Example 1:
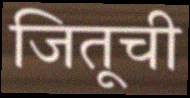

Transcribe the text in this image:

जितूची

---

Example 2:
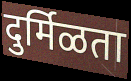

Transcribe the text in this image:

दुर्मिळता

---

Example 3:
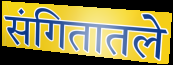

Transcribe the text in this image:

संगितातले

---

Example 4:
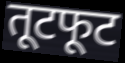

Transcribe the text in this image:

तूटफूट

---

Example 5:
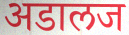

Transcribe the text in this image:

अडालज